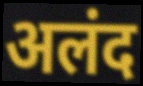
अलंद